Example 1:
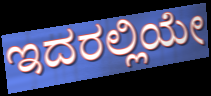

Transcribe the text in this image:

ಇದರಲ್ಲಿಯೇ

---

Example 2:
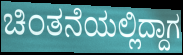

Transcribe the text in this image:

ಚಿಂತನೆಯಲ್ಲಿದ್ದಾಗ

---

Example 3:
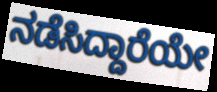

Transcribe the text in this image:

ನಡೆಸಿದ್ದಾರೆಯೇ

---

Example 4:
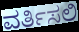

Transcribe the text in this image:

ವರ್ತಿಸಲಿ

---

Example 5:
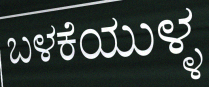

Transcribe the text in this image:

ಬಳಕೆಯುಳ್ಳ